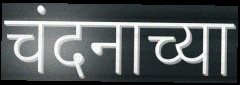
चंदनाच्या